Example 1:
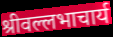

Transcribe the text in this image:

श्रीवल्लभाचार्य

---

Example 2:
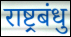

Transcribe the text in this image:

राष्ट्रबंधु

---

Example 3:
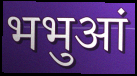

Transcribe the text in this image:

भभुआं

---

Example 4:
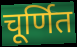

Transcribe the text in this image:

चूर्णित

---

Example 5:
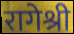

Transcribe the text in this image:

रागेश्री